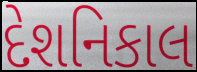
દેશનિકાલ